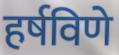
हर्षविणे